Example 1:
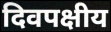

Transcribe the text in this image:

दिवपक्षीय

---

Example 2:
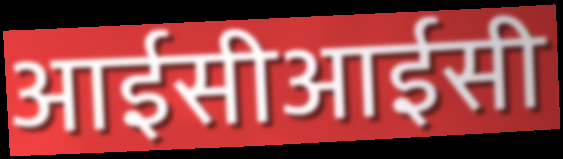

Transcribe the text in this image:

आईसीआईसी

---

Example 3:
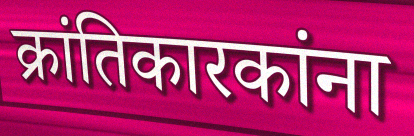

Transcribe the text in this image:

क्रांतिकारकांना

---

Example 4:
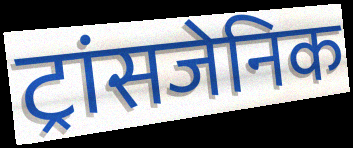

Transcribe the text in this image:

ट्रांसजेनिक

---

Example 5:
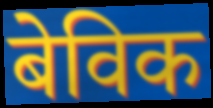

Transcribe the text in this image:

बेविक